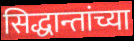
सिद्धान्तांच्या